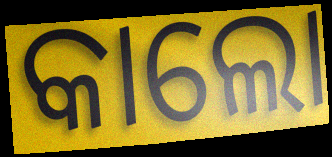
କାଲୋ